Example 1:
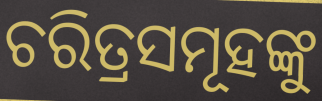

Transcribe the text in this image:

ଚରିତ୍ରସମୂହଙ୍କୁ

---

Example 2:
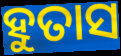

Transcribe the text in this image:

ହୁତାସ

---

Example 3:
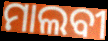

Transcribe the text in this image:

ମାଲବୀ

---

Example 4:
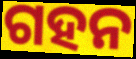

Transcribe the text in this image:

ଗହନ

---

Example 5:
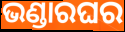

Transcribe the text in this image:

ଭଣ୍ଡାରଘର